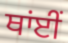
ਥਾਂਈਂ